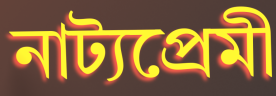
নাট্যপ্ৰেমী